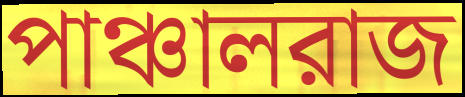
পাঞ্চালরাজ